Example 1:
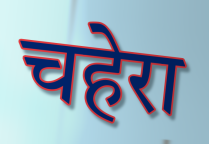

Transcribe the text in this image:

चहेरा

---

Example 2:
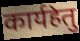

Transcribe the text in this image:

कार्यहेतु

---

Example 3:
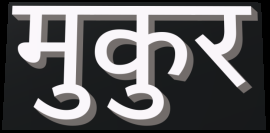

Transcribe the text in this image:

मुकुर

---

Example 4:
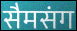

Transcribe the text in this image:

सैमसंग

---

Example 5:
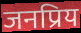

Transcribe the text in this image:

जनप्रिय